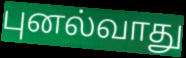
புனல்வாது